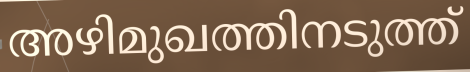
അഴിമുഖത്തിനടുത്ത്